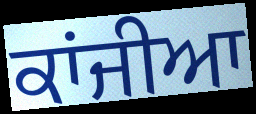
ਕਾਂਜੀਆ